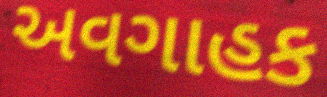
અવગાહક